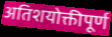
अतिशयोक्तीपूर्ण